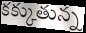
కక్కుతున్న